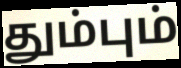
தும்பும்